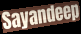
Sayandeep